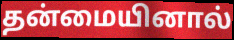
தன்மையினால்